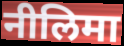
नीलिमा